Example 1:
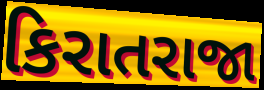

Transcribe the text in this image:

કિરાતરાજા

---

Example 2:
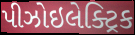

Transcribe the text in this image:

પીઝોઇલેક્ટ્રિક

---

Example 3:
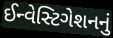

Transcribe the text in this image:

ઈન્વેસ્ટિગેશનનું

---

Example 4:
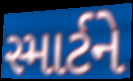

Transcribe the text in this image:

સ્માર્ટને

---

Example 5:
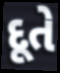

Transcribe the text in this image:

દૂતે